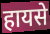
हायसे